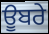
ਊਬਰੇ